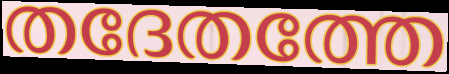
തദേതത്തേ